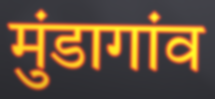
मुंडागांव